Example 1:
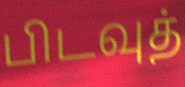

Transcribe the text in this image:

பிடவுத்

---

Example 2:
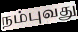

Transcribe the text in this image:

நம்புவது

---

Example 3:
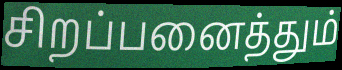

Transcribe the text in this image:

சிறப்பனைத்தும்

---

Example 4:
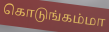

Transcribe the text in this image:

கொடுங்கம்மா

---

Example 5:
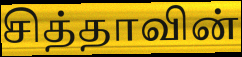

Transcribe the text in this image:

சித்தாவின்